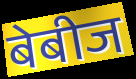
बेबीज